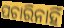
ପଚାରିନାହିଁ